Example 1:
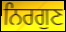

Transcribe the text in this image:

ਨਿਰਗੁਣ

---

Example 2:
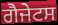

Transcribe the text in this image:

ਗੈਜੇਟਸ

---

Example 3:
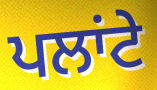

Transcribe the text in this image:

ਪਲਾਂਟੇ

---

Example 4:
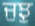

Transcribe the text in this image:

ਜੁਝੁ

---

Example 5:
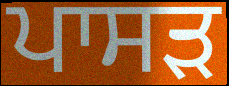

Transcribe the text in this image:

ਪਾਸੜ